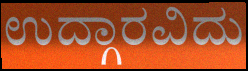
ಉದ್ಗಾರವಿದು